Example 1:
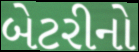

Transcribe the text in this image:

બેટરીનો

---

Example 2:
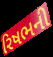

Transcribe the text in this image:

રિષભની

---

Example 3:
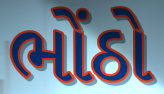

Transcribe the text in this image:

ભોંઠો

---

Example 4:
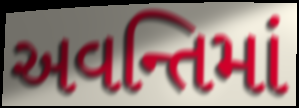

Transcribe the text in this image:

અવન્તિમાં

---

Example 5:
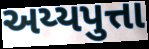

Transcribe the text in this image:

અય્યપુત્તા